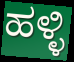
ಹಳ್ಳಿ